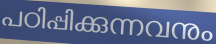
പഠിപ്പിക്കുന്നവനും